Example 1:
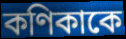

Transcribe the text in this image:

কণিকাকে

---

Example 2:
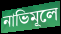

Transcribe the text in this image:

নাভিমূলে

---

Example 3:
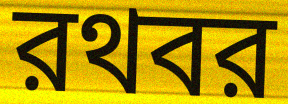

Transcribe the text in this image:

রথবর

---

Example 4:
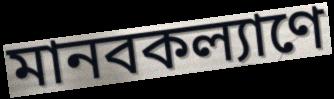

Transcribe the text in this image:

মানবকল্যাণে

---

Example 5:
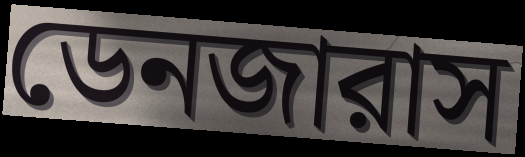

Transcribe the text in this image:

ডেনজারাস